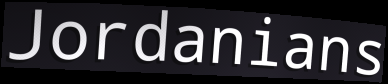
Jordanians